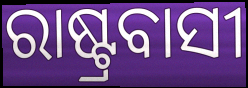
ରାଷ୍ଟ୍ରବାସୀ